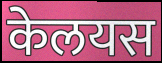
केलयस